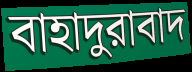
বাহাদুরাবাদ